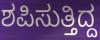
ಶಪಿಸುತ್ತಿದ್ದ